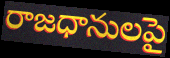
రాజధానులపై